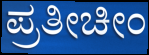
ಪ್ರತೀಚೀಂ